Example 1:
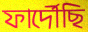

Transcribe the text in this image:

ফাৰ্দৌছি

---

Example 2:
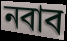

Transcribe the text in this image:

নবাব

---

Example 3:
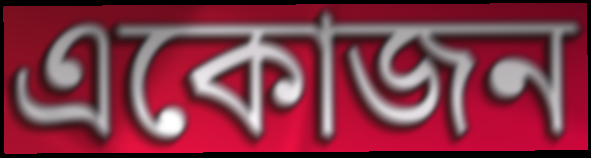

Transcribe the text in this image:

একোজন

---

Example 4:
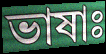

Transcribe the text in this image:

ভাষাঃ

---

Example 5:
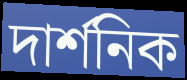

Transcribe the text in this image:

দাৰ্শনিক